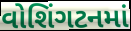
વોશિંગટનમાં